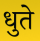
धुते